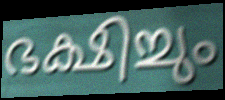
ഭക്ഷിച്ചും